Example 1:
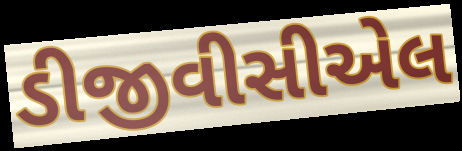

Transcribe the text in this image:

ડીજીવીસીએલ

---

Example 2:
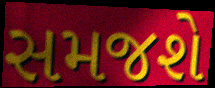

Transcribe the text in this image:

સમજશે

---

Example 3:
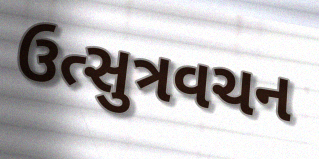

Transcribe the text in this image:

ઉત્સુત્રવચન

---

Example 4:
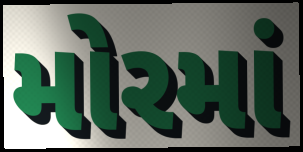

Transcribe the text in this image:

મોરમાં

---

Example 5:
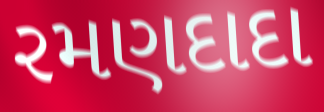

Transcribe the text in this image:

રમણદાદા